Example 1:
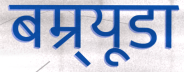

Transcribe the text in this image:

बम्र्यूडा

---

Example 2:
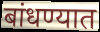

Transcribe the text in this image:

बांधण्यात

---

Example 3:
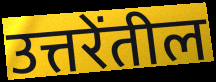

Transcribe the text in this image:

उत्तरेंतील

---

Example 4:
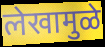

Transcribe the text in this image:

लेखामुळे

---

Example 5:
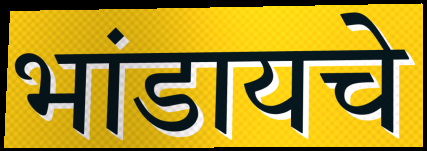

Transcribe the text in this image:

भांडायचे